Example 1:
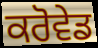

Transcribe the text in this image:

ਕਰੋਵੇਡ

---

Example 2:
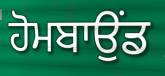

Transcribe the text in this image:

ਹੋਮਬਾਉਂਡ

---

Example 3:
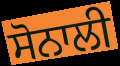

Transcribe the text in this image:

ਸੋਨਾਲੀ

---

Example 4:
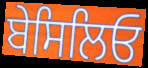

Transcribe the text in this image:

ਬੇਸਿਲਿਓ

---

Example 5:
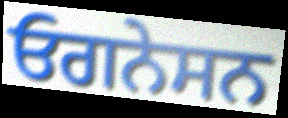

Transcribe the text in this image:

ਓਗਨੇਸਨ